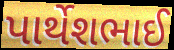
પાર્થેશભાઈ